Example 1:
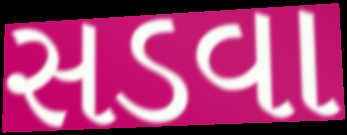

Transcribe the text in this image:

સડવા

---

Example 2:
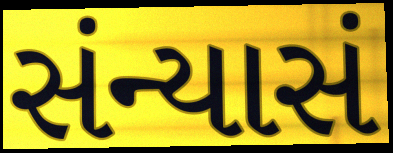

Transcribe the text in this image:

સંન્યાસં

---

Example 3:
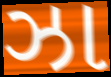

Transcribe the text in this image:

ઝા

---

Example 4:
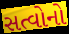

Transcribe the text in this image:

સત્વોનો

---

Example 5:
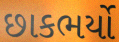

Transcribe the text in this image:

છાકભર્યો